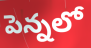
పెన్నలో